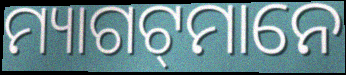
ମ୍ୟାଗଟ୍‌ମାନେ